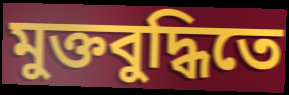
মুক্তবুদ্ধিতে